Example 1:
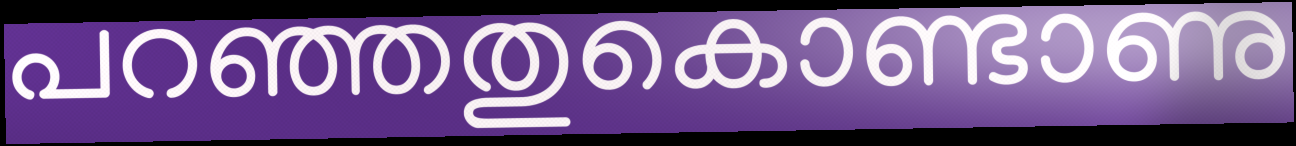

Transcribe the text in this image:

പറഞ്ഞതുകൊണ്ടാണു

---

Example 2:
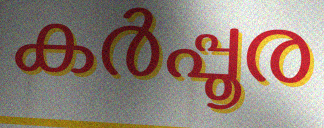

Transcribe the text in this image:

കർപ്പൂര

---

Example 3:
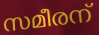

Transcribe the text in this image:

സമീരന്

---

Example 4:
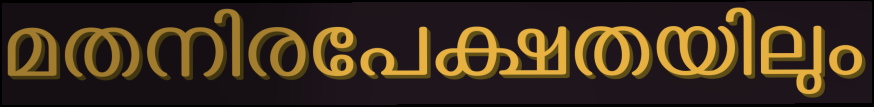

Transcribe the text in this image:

മതനിരപേക്ഷതയിലും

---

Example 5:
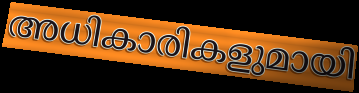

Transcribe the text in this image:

അധികാരികളുമായി